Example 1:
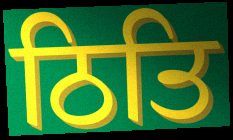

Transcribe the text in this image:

ਠਿਤਿ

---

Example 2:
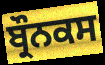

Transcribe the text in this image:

ਬ੍ਰੌਨਕਸ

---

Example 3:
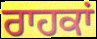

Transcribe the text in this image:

ਰਾਹਕਾਂ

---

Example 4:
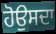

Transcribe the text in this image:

ਹੋਉਸਦਾ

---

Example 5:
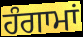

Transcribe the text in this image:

ਹੰਗਾਮਾਂ